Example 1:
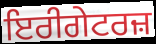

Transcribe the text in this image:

ਇਰੀਗੇਟਰਜ਼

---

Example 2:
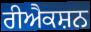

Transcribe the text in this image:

ਰੀਐਕਸ਼ਨ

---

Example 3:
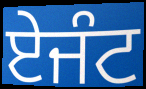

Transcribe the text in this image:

ਏਜੰਟ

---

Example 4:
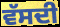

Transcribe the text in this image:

ਵੱਸਦੀ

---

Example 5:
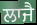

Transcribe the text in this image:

ਲਾਜੈ